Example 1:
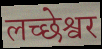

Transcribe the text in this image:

लच्छेश्वर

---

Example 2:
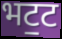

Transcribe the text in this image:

भट॒ट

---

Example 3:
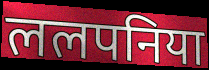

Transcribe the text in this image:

ललपनिया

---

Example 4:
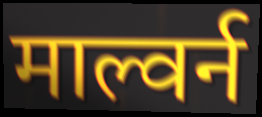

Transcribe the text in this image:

माल्वर्न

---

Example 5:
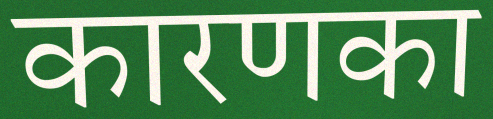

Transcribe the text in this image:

कारणका